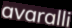
avaralli